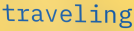
traveling